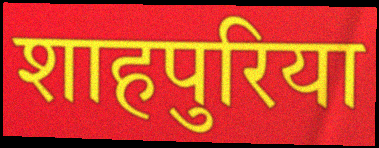
शाहपुरिया